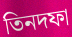
তিনদফা